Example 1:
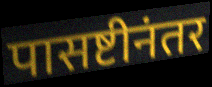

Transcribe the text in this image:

पासष्टीनंतर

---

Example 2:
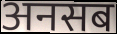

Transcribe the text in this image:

अनसब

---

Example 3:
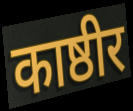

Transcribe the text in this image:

काष्ठीर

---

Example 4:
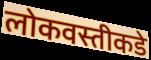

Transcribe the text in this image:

लोकवस्तीकडे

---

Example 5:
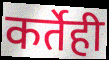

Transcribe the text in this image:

कर्तेही